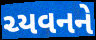
ચ્યવનને